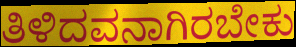
ತಿಳಿದವನಾಗಿರಬೇಕು